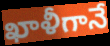
ఖాళీగానే